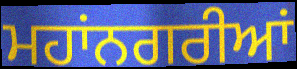
ਮਹਾਂਨਗਰੀਆਂ